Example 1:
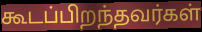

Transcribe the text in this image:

கூடப்பிறந்தவர்கள்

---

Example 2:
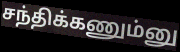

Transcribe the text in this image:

சந்திக்கணும்னு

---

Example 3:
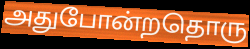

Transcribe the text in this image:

அதுபோன்றதொரு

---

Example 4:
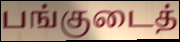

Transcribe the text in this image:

பங்குடைத்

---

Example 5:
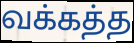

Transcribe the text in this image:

வக்கத்த